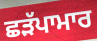
ਛੜੱਪਾਮਾਰ